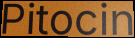
Pitocin